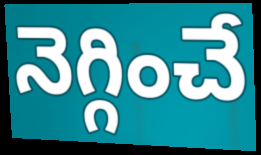
నెగ్గించే